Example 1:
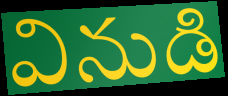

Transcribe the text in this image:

వినుడి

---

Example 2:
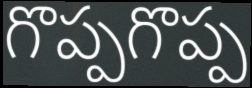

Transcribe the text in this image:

గొప్పగొప్ప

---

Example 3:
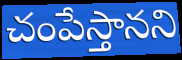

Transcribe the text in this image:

చంపేస్తానని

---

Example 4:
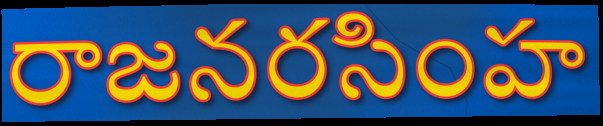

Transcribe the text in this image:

రాజనరసింహ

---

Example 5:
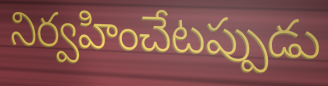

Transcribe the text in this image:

నిర్వహించేటప్పుడు